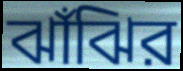
ঝাঁঝির